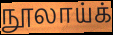
நூலாய்க்